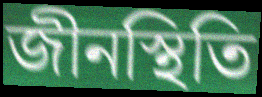
জীনস্থিতি